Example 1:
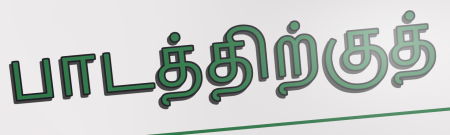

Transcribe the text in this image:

பாடத்திற்குத்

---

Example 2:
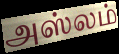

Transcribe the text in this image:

அஸ்லம்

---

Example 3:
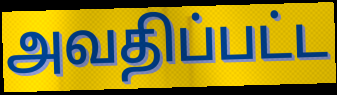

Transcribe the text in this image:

அவதிப்பட்ட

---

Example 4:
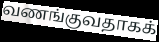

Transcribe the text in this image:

வணங்குவதாகக்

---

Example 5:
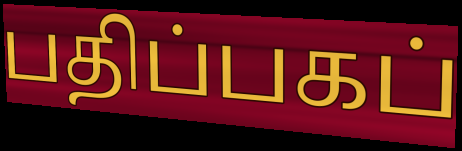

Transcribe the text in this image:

பதிப்பகப்